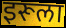
इरूला